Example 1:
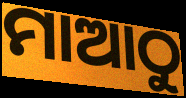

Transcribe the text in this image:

ମାଆଠୁ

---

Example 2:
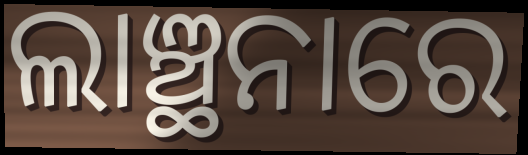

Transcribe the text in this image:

ଲାଞ୍ଛନାରେ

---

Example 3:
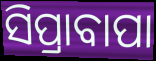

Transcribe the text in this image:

ସିପ୍ରାବାପା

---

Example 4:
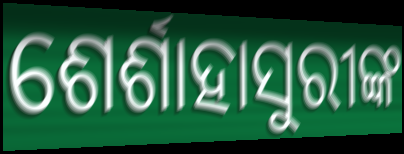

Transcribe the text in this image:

ଶେର୍ଶାହାସୁରୀଙ୍କ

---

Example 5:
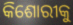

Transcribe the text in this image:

କିଶୋରୀକୁ